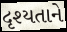
દૃશ્યતાને